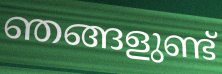
ഞങ്ങളുണ്ട്